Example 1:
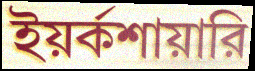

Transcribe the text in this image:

ইয়র্কশায়ারি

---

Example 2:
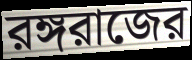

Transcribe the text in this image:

রঙ্গরাজের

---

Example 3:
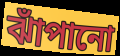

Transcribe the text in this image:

ঝাঁপানো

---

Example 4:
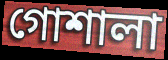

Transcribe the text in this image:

গোশালা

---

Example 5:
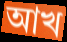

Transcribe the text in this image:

আখ